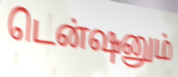
டென்ஷனும்